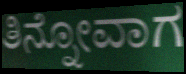
ತಿನ್ನೋವಾಗ